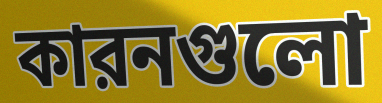
কারনগুলো